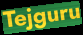
Tejguru